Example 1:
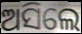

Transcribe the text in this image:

ଅସିଲେ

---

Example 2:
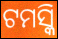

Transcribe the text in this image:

ଟମସ୍କି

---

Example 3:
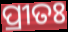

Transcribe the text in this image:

ପ୍ରୀତଃ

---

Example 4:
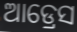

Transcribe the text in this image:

ଆଡ୍ରେସ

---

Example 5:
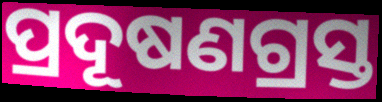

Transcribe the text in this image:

ପ୍ରଦୂଷଣଗ୍ରସ୍ତ